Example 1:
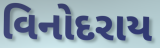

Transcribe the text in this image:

વિનોદરાય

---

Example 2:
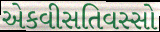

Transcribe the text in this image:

એકવીસતિવસ્સો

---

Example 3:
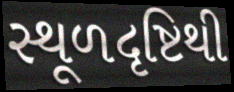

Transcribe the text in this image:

સ્થૂળદૃષ્ટિથી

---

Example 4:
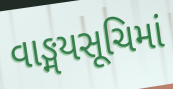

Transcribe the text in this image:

વાઙ્મયસૂચિમાં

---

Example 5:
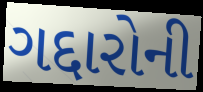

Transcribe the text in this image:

ગદ્દારોની